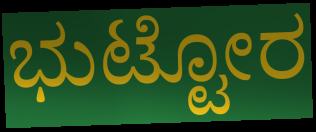
ಭುಟ್ಟೋರ